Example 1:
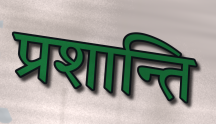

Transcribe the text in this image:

प्रशान्ति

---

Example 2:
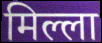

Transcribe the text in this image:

मिल्ला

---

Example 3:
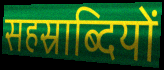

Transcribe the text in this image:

सहस्राब्दियों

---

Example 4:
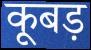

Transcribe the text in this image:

कूबड़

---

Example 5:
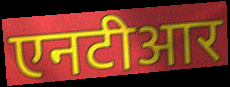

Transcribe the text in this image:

एनटीआर